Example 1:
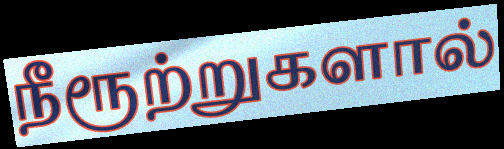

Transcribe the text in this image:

நீரூற்றுகளால்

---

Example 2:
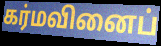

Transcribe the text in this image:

கர்மவினைப்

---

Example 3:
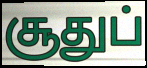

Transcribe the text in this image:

சூதுப்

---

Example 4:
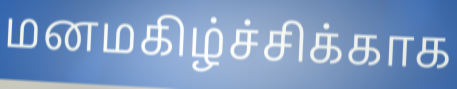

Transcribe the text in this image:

மனமகிழ்ச்சிக்காக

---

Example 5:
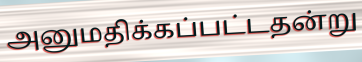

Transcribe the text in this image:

அனுமதிக்கப்பட்டதன்று